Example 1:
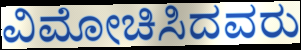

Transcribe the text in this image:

ವಿಮೋಚಿಸಿದವರು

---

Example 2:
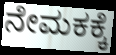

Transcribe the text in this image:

ನೇಮಕಕ್ಕೆ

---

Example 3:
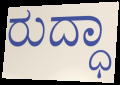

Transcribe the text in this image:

ರುದ್ಧಾ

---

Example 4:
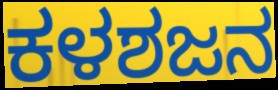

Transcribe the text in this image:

ಕಳಶಜನ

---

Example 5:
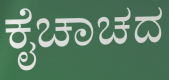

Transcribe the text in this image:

ಕೈಚಾಚದ